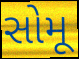
સોમૂ